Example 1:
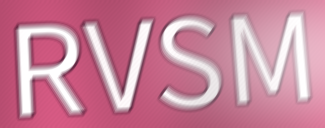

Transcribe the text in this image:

RVSM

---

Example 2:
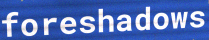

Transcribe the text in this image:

foreshadows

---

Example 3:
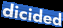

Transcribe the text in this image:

dicided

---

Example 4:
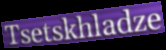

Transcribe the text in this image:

Tsetskhladze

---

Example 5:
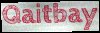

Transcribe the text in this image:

Qaitbay